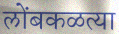
लोंबकळत्या